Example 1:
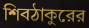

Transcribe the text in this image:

শিবঠাকুরের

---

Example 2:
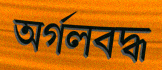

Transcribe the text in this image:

অর্গলবদ্ধ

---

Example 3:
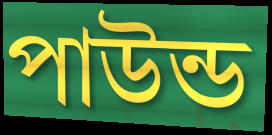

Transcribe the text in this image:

পাউন্ড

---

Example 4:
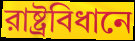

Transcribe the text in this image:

রাষ্ট্রবিধানে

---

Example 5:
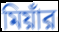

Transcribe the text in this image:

মিয়াঁর